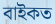
বাইকত